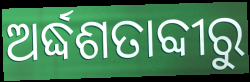
ଅର୍ଦ୍ଧଶତାବ୍ଦୀରୁ